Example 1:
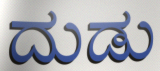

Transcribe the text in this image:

ದುಡು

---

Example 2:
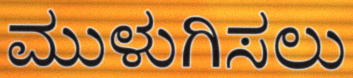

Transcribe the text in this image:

ಮುಳುಗಿಸಲು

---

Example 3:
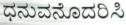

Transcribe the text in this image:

ಧನುವನೊದರಿಸಿ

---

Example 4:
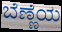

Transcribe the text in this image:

ಬೆಣ್ಣೆಯ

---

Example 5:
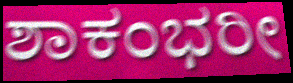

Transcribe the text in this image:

ಶಾಕಂಭರೀ